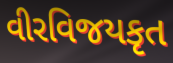
વીરવિજયકૃત